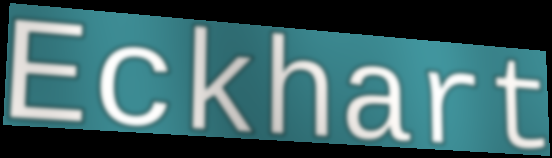
Eckhart